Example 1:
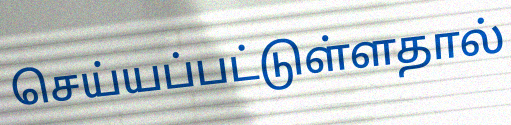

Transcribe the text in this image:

செய்யப்பட்டுள்ளதால்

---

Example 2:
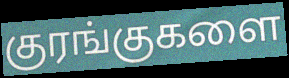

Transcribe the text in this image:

குரங்குகளை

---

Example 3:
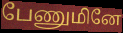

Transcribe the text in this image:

பேணுமினே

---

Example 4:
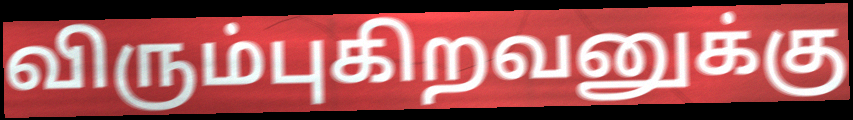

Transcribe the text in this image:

விரும்புகிறவனுக்கு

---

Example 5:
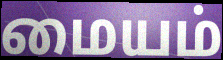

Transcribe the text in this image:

மையம்